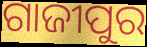
ଗାଜୀପୁର